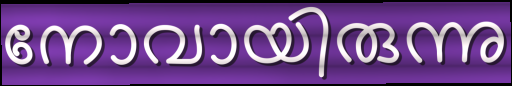
നോവായിരുന്നു